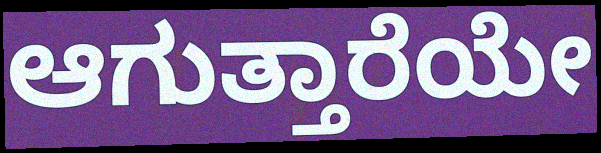
ಆಗುತ್ತಾರೆಯೇ